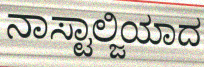
ನಾಸ್ಟಾಲ್ಜಿಯಾದ